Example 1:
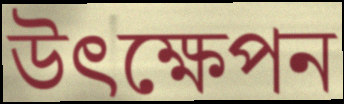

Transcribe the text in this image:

উৎক্ষেপন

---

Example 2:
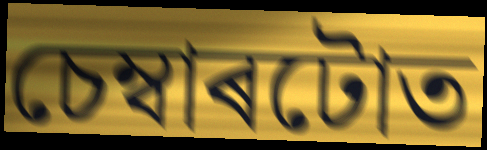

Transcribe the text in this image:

চেম্বাৰটোত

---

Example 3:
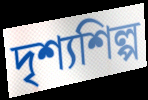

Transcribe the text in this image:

দৃশ্যশিল্প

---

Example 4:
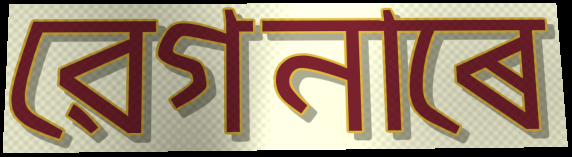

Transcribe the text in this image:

ৱেগনাৰে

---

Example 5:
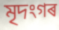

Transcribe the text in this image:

মৃদংগৰ